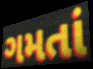
ગમતાં